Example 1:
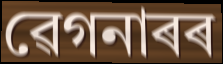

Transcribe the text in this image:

ৱেগনাৰৰ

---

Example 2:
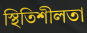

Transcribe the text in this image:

স্থিতিশীলতা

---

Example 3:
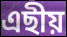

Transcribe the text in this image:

এছীয়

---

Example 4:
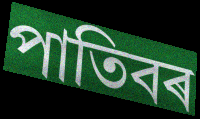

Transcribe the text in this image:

পাতিবৰ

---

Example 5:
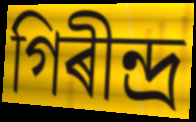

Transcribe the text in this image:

গিৰীন্দ্ৰ